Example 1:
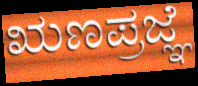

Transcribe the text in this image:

ಋಣಪ್ರಜ್ಞೆ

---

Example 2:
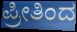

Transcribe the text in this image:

ಪ್ರೀತಿಂದ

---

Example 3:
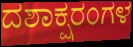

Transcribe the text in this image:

ದಶಾಕ್ಷರಂಗಳ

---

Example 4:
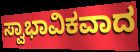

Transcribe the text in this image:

ಸ್ವಾಭಾವಿಕವಾದ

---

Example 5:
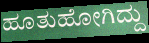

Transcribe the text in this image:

ಹೂತುಹೋಗಿದ್ದು